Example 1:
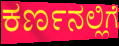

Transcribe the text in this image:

ಕರ್ಣನಲ್ಲಿಗೆ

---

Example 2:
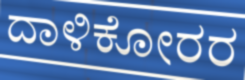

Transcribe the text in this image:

ದಾಳಿಕೋರರ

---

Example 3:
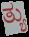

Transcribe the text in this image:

ತ್ಯು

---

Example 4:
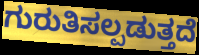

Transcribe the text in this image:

ಗುರುತಿಸಲ್ಪಡುತ್ತದೆ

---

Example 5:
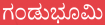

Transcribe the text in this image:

ಗಂಡುಭೂಮಿ